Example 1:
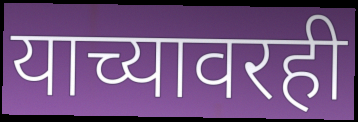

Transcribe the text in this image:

याच्यावरही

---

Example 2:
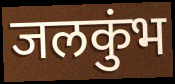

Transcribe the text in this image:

जलकुंभ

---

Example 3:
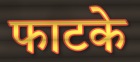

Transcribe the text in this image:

फाटके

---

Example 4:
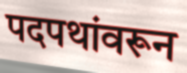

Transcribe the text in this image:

पदपथांवरून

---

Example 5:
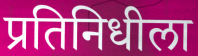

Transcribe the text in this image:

प्रतिनिधीला